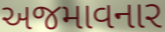
અજમાવનાર